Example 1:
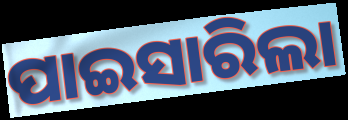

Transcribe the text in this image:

ପାଇସାରିଲା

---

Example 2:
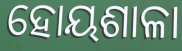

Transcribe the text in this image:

ହୋୟଶାଳା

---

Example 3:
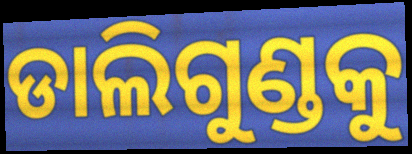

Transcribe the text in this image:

ଡାଲିଗୁଣ୍ଡକୁ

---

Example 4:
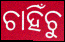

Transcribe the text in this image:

ଚାହିଁଚୁ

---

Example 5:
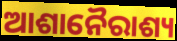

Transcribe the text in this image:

ଆଶାନୈରାଶ୍ୟ